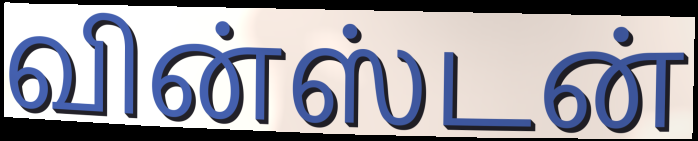
வின்ஸ்டன்